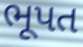
ભૂપત